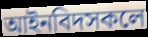
আইনবিদসকলে